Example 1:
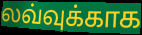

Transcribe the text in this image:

லவ்வுக்காக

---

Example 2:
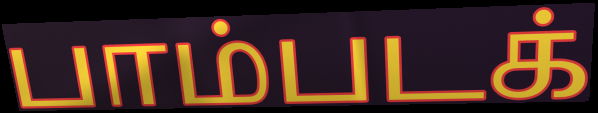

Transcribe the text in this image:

பாம்படக்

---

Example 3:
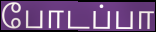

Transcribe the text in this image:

போடப்பா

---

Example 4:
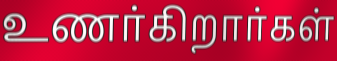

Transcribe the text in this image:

உணர்கிறார்கள்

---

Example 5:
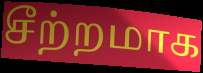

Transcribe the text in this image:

சீற்றமாக